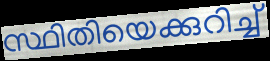
സ്ഥിതിയെക്കുറിച്ച്